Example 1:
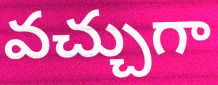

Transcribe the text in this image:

వచ్చుగా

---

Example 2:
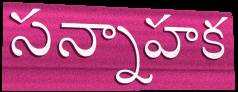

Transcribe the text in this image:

సన్నాహక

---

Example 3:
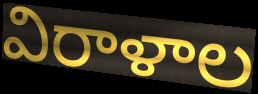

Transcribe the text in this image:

విరాళాల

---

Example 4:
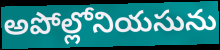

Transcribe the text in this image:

అపోల్లోనియసును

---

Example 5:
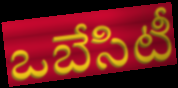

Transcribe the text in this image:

ఒబేసిటీ